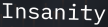
Insanity